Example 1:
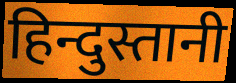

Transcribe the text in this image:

हिन्दुस्तानी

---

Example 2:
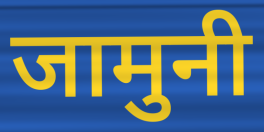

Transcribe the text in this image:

जामुनी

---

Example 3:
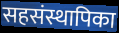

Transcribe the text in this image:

सहसंस्थापिका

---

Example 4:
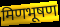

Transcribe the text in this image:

मिणभूषण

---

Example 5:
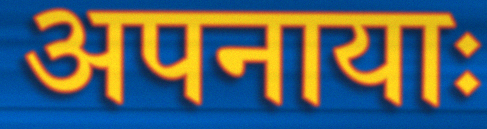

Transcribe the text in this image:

अपनायाः